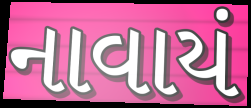
નાવાયં